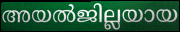
അയൽജില്ലയായ